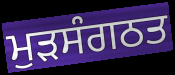
ਮੁੜਸੰਗਠਤ